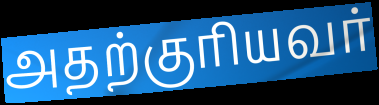
அதற்குரியவர்